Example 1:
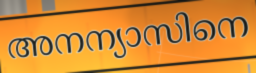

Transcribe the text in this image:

അനന്യാസിനെ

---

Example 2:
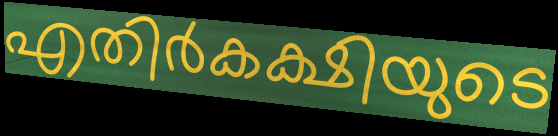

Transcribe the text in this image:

എതിർകക്ഷിയുടെ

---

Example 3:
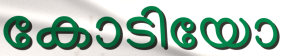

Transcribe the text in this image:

കോടിയോ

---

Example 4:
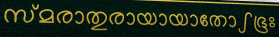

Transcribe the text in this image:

സ്മരാതുരായായാതോഽഭൂഃ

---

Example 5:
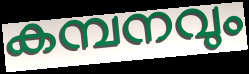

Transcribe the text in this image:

കമ്പനവും